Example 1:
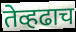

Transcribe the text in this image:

तेव्हढाच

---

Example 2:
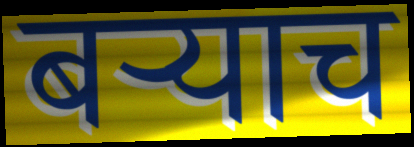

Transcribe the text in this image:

बर्‍याच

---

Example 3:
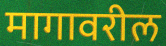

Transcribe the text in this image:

मागावरील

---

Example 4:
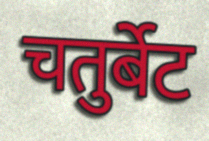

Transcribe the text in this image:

चतुर्बेट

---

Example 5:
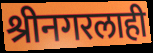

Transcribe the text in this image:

श्रीनगरलाही